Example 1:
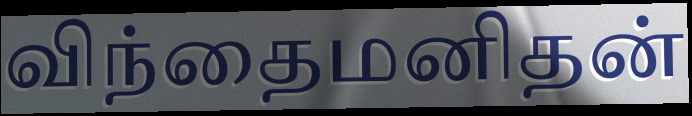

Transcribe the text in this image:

விந்தைமனிதன்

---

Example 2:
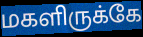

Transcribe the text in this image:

மகளிருக்கே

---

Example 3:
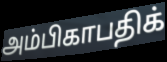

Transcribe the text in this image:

அம்பிகாபதிக்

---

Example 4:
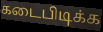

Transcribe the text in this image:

கடைபிடிக்க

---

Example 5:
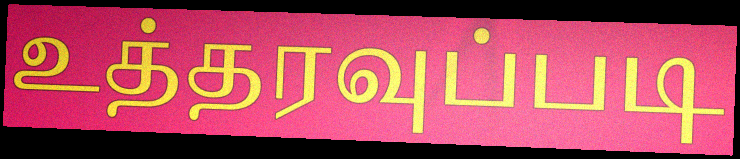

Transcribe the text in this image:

உத்தரவுப்படி